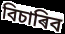
বিচাৰিব